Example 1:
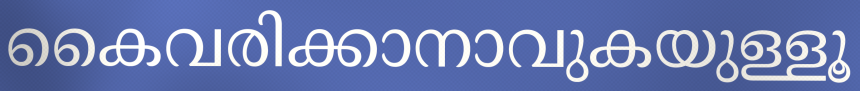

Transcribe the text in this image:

കൈവരിക്കാനാവുകയുള്ളൂ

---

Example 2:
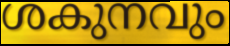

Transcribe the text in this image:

ശകുനവും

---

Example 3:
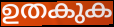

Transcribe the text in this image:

ഉതകുക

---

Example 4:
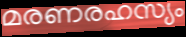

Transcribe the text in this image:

മരണരഹസ്യം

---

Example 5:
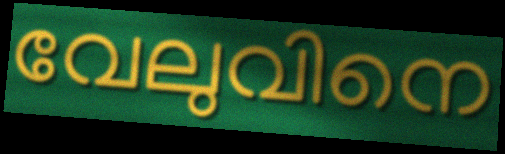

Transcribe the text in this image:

വേലുവിനെ